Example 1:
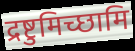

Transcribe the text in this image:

द्रष्टुमिच्छामि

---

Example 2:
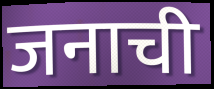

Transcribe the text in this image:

जनाची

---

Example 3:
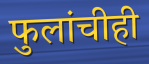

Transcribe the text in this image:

फुलांचीही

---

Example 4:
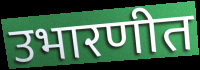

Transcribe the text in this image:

उभारणीत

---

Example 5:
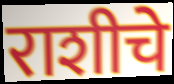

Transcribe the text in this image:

राशीचे